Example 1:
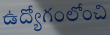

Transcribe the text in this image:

ఉద్యోగంలోంచి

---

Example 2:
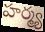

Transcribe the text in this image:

హర్మ్య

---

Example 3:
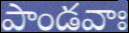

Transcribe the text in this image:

పాండవాః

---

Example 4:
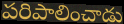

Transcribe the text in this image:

పరిపాలించాడు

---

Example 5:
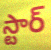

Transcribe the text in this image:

స్టార్